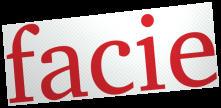
facie